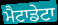
ਮੈਟਾਡੇਟਾ